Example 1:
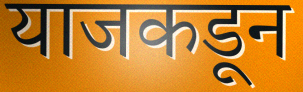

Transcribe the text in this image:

याजकडून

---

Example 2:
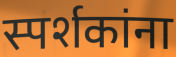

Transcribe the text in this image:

स्पर्शकांना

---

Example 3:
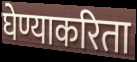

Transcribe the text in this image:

घेण्याकरिता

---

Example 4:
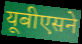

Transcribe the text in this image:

यूबीएसने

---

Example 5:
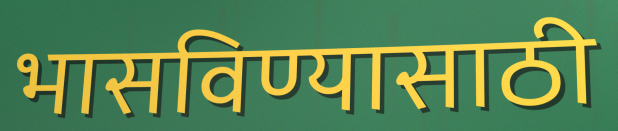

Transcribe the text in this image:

भासविण्यासाठी